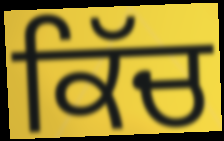
ਕਿੱਚ